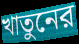
খাতুনের